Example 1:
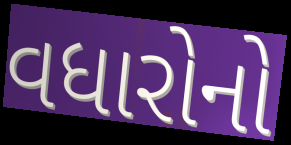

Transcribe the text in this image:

વધારોનો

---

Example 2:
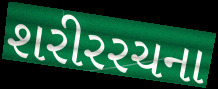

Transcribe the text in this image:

શરીરરચના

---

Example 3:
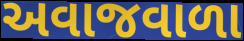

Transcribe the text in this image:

અવાજવાળા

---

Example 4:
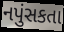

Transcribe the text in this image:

નપુંસકતા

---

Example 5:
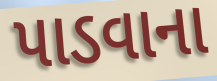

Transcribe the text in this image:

પાડવાના